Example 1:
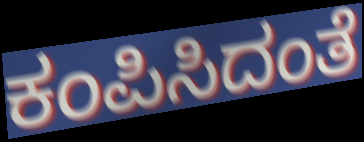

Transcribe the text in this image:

ಕಂಪಿಸಿದಂತೆ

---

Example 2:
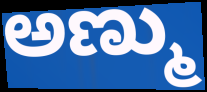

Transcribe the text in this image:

ಅಣ್ಮು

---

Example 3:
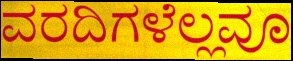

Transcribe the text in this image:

ವರದಿಗಳೆಲ್ಲವೂ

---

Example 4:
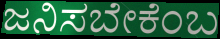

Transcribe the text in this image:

ಜನಿಸಬೇಕೆಂಬ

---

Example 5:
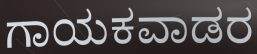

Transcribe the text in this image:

ಗಾಯಕವಾಡರ